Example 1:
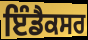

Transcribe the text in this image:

ਇੰਡੈਕਸਰ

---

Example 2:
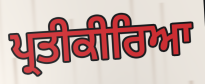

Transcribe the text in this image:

ਪ੍ਰਤੀਕੀਰਿਆ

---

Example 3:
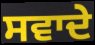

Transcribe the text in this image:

ਸਵਾਦੇ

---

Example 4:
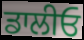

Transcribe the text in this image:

ਡਾਲੀਓ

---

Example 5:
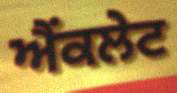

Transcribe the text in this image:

ਐਂਕਲੇਟ